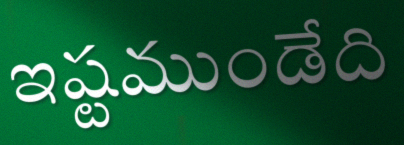
ఇష్టముండేది